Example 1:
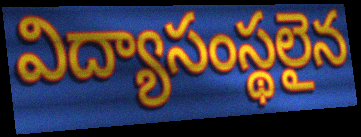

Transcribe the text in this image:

విద్యాసంస్థలైన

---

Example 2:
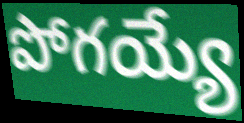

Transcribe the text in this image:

పోగయ్యే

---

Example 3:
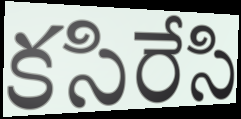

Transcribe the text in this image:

కసిరేసి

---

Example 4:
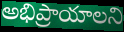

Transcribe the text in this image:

అభిప్రాయాలని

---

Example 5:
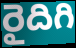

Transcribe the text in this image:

రైదిగి